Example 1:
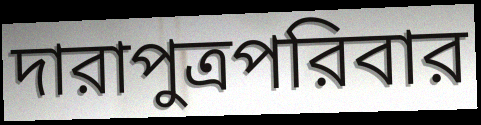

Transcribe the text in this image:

দারাপুত্রপরিবার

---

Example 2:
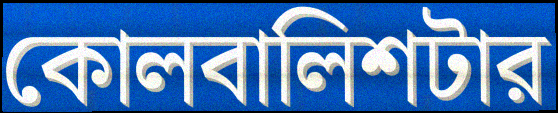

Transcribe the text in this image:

কোলবালিশটার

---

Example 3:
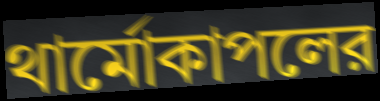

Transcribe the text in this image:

থার্মোকাপলের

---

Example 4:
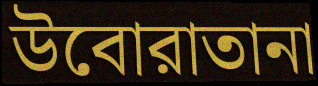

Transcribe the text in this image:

উবোরাতানা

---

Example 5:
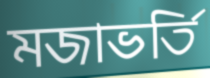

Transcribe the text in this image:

মজাভর্তি